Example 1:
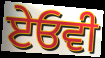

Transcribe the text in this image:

ਏਓਵੀ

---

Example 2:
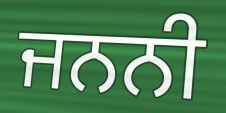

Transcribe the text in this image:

ਜਨਨੀ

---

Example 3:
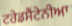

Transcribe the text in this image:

ਟਰੇਡਸੈਂਟੇਨੀਆ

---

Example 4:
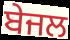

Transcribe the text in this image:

ਬੇਜਲ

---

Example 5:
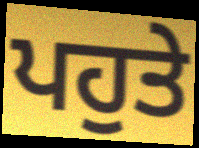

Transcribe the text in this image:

ਪਹੁਤੇ